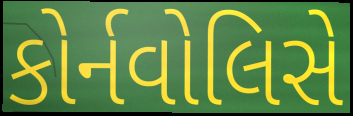
કોર્નવોલિસે